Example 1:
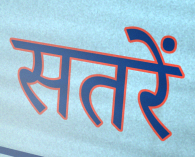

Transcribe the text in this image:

सतरें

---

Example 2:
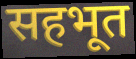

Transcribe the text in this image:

सहभूत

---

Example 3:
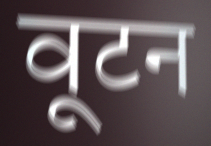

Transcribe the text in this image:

वूटन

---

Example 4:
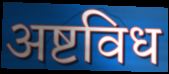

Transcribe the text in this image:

अष्टविध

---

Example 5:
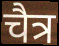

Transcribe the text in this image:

चैत्र